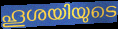
ഹൂശയിയുടെ